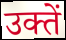
उक्तें